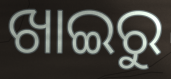
ଖାଇରୁ